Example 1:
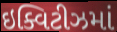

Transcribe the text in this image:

ઇક્વિટીઝમાં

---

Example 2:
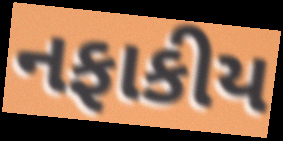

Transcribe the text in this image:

નફાકીય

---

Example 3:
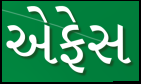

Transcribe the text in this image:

એફેસ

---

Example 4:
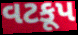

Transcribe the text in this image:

વટકૂપ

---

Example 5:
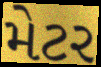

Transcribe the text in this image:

મેટર